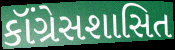
કૉંગ્રેસશાસિત